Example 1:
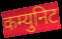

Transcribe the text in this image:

कम्युनिट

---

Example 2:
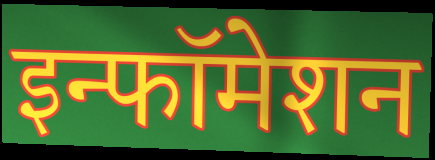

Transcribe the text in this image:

इन्फॉमेशन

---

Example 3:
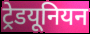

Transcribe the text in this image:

ट्रेडयूनियन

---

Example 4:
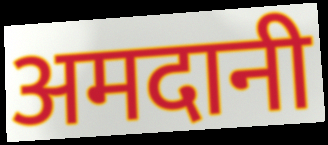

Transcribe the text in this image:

अमदानी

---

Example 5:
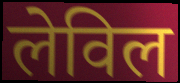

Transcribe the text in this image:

लेविल